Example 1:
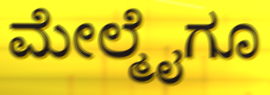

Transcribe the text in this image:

ಮೇಲ್ಮೈಗೂ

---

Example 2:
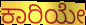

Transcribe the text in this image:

ಕಾರಿಯೇ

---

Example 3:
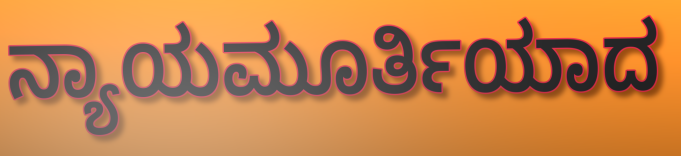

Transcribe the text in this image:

ನ್ಯಾಯಮೂರ್ತಿಯಾದ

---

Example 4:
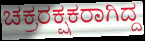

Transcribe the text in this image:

ಚಕ್ರರಕ್ಷಕರಾಗಿದ್ದ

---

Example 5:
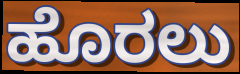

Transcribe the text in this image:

ಹೊರಲು